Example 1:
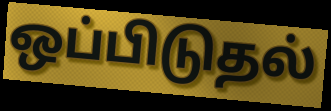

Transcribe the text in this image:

ஒப்பிடுதல்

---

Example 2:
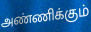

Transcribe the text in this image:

அண்ணிக்கும்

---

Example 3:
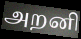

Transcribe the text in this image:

அறனி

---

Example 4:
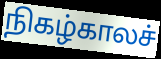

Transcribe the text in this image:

நிகழ்காலச்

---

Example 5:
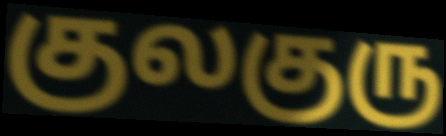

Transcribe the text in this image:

குலகுரு